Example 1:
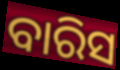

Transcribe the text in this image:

ବାରିସ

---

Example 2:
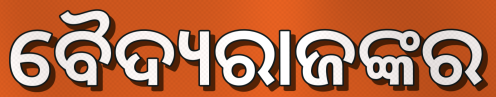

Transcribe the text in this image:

ବୈଦ୍ୟରାଜଙ୍କର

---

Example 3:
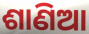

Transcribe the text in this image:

ଶାଣିଆ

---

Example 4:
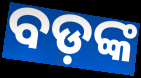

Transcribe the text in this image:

ବଡ଼ଙ୍କ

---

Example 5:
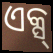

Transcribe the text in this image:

ଏକ୍ସ୍